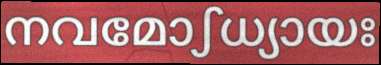
നവമോഽധ്യായഃ